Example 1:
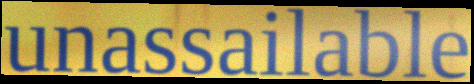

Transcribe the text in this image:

unassailable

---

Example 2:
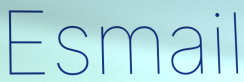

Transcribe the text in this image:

Esmail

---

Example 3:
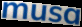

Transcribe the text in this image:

musa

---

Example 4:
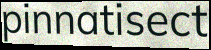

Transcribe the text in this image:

pinnatisect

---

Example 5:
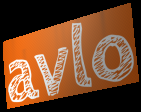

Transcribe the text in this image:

avlo